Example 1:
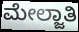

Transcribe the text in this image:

ಮೇಲ್ಜಾತಿ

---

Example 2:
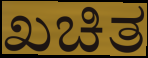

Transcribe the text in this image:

ಖಚಿತ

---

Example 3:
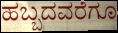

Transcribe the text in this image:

ಹಬ್ಬದವರೆಗೂ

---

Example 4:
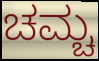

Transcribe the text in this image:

ಚಮ್ಚ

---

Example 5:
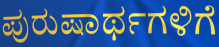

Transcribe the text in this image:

ಪುರುಷಾರ್ಥಗಳಿಗೆ